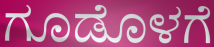
ಗೂಡೊಳಗೆ